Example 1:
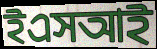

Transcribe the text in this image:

ইএসআই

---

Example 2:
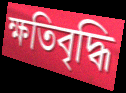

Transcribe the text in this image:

ক্ষতিবৃদ্ধি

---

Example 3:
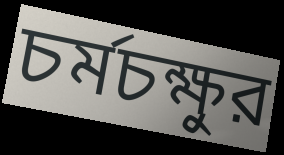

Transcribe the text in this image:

চর্মচক্ষুর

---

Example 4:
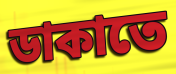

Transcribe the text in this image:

ডাকাতে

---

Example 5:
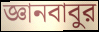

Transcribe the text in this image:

জ্ঞানবাবুর